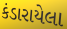
કંડારાયેલા